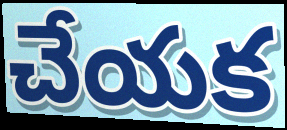
చేయక